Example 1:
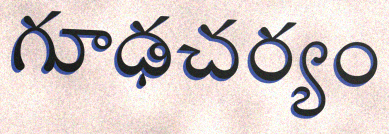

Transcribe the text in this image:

గూఢచర్యం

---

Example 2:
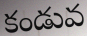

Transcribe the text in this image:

కండువ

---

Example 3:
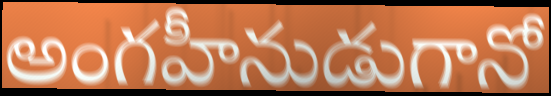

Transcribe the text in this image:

అంగహీనుడుగానో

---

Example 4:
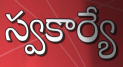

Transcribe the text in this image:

స్వకార్యే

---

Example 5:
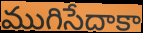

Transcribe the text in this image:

ముగిసేదాకా